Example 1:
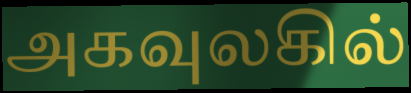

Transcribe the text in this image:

அகவுலகில்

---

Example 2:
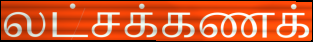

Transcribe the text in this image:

லட்சக்கணக்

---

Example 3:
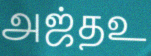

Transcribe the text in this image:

அஜ்தஉ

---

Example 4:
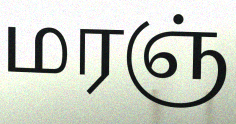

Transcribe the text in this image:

மரஞ்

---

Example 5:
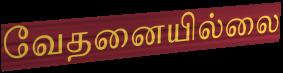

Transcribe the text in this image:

வேதனையில்லை